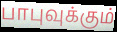
பாபுவுக்கும்